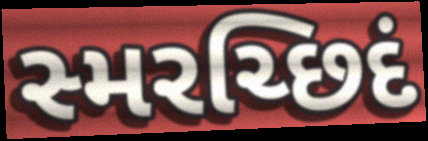
સ્મરચ્છિદં